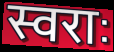
स्वराः